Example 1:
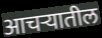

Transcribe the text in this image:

आचऱ्यातील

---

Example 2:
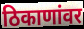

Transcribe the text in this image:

ठिकाणांवर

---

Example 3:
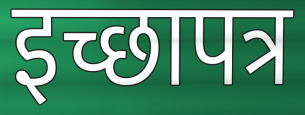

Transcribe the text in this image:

इच्छापत्र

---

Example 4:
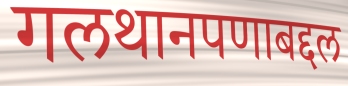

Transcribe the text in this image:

गलथानपणाबद्दल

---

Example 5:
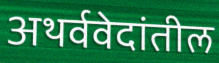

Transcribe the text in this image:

अथर्ववेदांतील